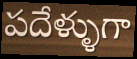
పదేళ్ళుగా